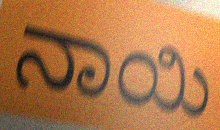
ನಾಯಿ